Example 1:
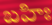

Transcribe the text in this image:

బహిః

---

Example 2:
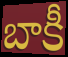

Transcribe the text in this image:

బాకీ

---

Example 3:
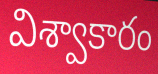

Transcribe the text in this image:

విశ్వాకారం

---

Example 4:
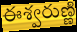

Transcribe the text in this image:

ఈశ్వరుణ్ణి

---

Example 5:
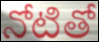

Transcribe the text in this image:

నోటితో